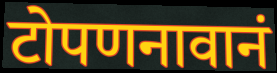
टोपणनावानं